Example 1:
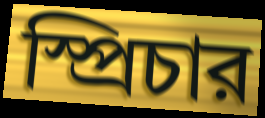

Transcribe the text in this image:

স্প্রিচার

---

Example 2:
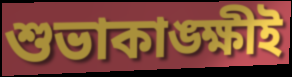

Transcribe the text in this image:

শুভাকাঙ্ক্ষীই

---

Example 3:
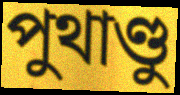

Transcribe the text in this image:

পুথাণ্ডু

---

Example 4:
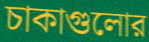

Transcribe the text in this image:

চাকাগুলোর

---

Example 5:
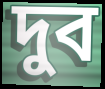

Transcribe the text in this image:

দুব